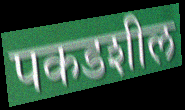
पकडशील